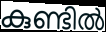
കുണ്ടിൽ